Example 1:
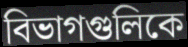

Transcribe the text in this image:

বিভাগগুলিকে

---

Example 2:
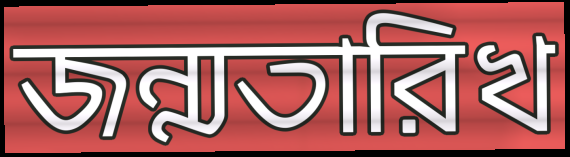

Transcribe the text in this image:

জন্মতারিখ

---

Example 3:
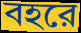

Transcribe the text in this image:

বহরে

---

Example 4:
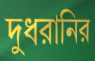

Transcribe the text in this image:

দুধরানির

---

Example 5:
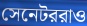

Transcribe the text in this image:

সেনেটররাও